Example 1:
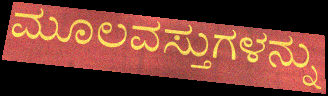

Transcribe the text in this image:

ಮೂಲವಸ್ತುಗಳನ್ನು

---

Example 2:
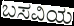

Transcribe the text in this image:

ಬಸವಿಯ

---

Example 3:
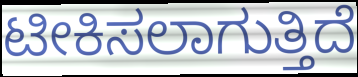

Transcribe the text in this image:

ಟೀಕಿಸಲಾಗುತ್ತಿದೆ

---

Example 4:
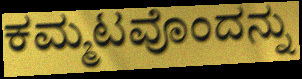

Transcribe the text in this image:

ಕಮ್ಮಟವೊಂದನ್ನು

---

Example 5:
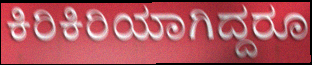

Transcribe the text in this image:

ಕಿರಿಕಿರಿಯಾಗಿದ್ದರೂ